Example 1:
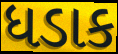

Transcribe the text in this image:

ધડાક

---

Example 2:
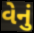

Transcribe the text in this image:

વેનું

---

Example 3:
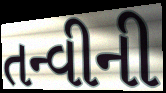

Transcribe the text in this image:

તન્વીની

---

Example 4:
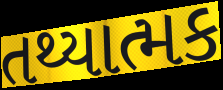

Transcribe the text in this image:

તથ્યાત્મક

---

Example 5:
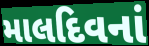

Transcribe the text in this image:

માલદિવનાં